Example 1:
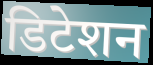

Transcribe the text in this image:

डिटेशन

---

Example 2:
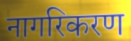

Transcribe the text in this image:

नागरिकरण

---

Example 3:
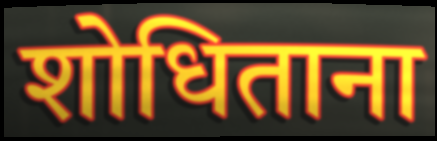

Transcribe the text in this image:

शोधिताना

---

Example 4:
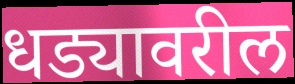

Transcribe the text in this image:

धड्यावरील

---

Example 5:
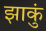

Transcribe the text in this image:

झाकुं